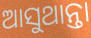
ଆସୁଥାନ୍ତା